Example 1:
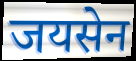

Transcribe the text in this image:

जयसेन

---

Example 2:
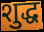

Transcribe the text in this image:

शुद्ध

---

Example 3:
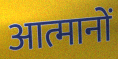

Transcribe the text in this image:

आत्मानों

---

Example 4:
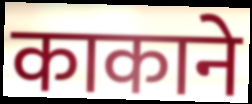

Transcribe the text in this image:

काकाने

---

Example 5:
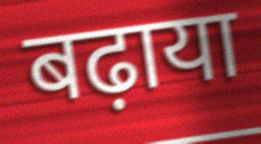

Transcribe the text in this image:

बढ़ाया